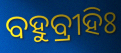
ବହୁବ୍ରୀହିଃ